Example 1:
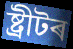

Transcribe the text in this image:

ষ্ট্ৰীটৰ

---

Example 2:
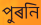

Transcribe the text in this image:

পুৰনি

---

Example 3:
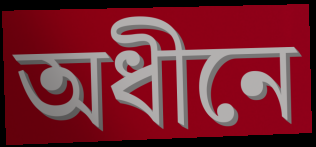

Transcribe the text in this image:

অধীনে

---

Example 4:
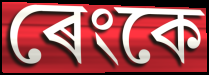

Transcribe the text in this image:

ৰেংকে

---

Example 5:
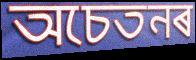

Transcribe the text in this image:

অচেতনৰ